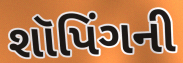
શૉપિંગની